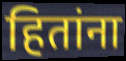
हितांना